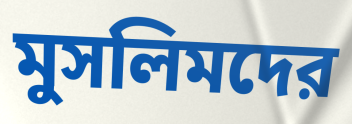
মুসলিমদের